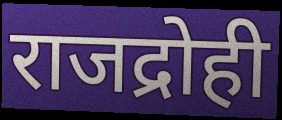
राजद्रोही